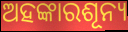
ଅହଙ୍କାରଶୂନ୍ୟ